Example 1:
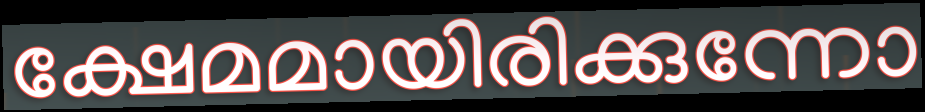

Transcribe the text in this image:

ക്ഷേമമായിരിക്കുന്നോ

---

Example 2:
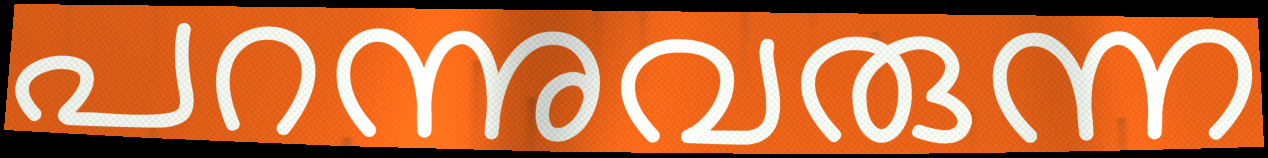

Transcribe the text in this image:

പറന്നുവരുന്ന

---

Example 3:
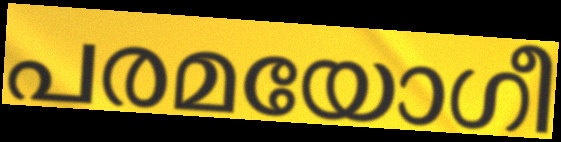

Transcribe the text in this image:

പരമയോഗീ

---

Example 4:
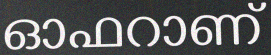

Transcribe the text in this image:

ഓഫറാണ്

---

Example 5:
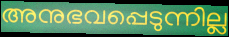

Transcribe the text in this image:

അനുഭവപ്പെടുന്നില്ല